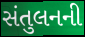
સંતુલનની